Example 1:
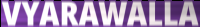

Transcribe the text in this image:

VYARAWALLA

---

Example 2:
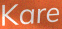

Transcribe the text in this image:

Kare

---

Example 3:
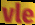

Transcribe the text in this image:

vle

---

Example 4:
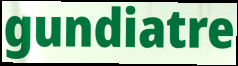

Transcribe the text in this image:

gundiatre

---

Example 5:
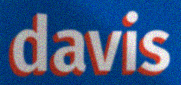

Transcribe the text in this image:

davis